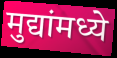
मुद्यांमध्ये